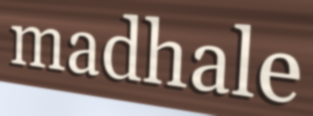
madhale